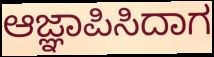
ಆಜ್ಞಾಪಿಸಿದಾಗ